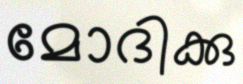
മോദിക്കു